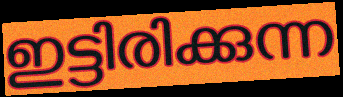
ഇട്ടിരിക്കുന്ന